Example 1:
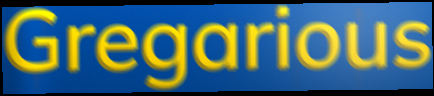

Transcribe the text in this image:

Gregarious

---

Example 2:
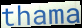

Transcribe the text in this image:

thama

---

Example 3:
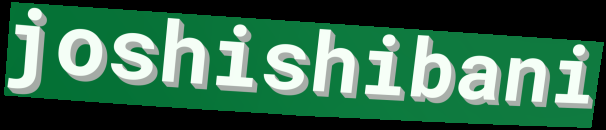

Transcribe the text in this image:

joshishibani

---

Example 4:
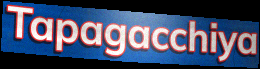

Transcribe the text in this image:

Tapagacchiya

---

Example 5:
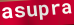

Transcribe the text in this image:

asupra